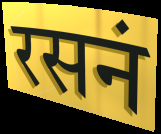
रसनं